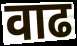
वाढ